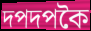
দপদপকৈ